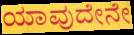
ಯಾವುದೇನೇ